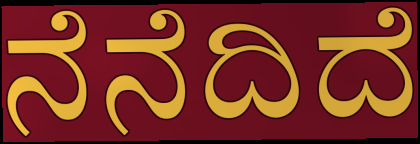
ನೆನೆದಿದೆ